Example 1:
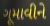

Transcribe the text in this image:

ગૂમાવીને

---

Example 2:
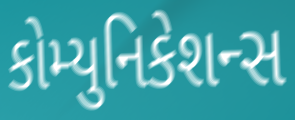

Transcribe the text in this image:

કોમ્યુનિકેશન્સ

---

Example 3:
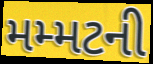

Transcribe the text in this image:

મમ્મટની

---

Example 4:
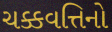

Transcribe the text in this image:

ચક્કવત્તિનો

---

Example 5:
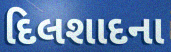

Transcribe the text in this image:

દિલશાદના